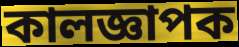
কালজ্ঞাপক